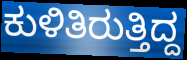
ಕುಳಿತಿರುತ್ತಿದ್ದ